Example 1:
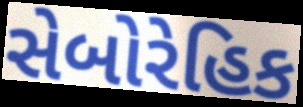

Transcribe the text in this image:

સેબોરેહિક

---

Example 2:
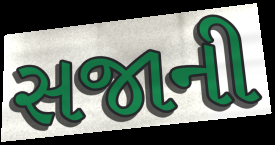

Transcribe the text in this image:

સજાની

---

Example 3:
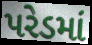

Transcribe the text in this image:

પરેડમાં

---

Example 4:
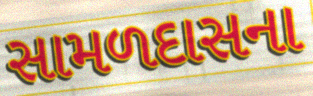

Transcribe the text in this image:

સામળદાસના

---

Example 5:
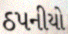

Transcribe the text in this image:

ઠપનીયો